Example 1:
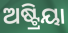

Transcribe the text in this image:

ଅଷ୍ଟ୍ରିୟା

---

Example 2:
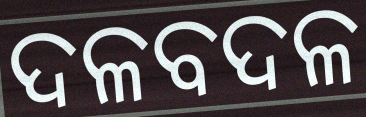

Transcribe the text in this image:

ଦଳବଦଳ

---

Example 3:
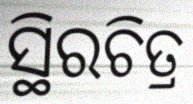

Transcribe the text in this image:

ସ୍ଥିରଚିତ୍ର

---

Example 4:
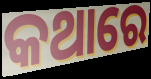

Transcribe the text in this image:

କଥାରେ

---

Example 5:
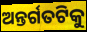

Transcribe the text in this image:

ଅନ୍ତର୍ଗତଟିକୁ